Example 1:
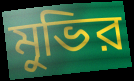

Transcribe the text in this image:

মুভির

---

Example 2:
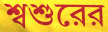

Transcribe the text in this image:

শ্বশুরের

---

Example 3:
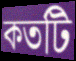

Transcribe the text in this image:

কতটি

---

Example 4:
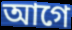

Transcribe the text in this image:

আগে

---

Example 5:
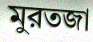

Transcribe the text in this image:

মুরতজা